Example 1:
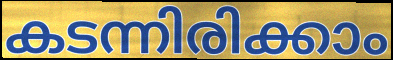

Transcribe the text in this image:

കടന്നിരിക്കാം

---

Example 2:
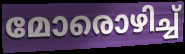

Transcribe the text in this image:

മോരൊഴിച്ച്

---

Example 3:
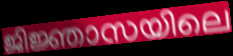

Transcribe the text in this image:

ജിജ്ഞാസയിലെ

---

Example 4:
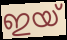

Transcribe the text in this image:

ഇയ്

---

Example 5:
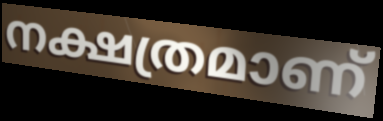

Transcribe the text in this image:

നക്ഷത്രമാണ്